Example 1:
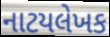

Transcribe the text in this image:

નાટયલેખક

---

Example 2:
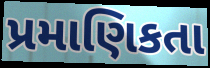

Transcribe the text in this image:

પ્રમાણિકતા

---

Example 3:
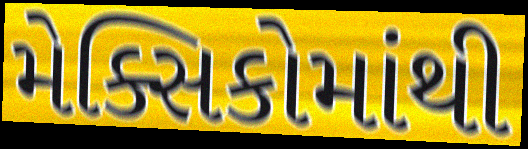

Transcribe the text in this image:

મેક્સિકોમાંથી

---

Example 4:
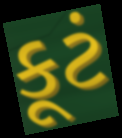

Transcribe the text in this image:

કૂટં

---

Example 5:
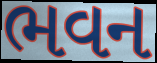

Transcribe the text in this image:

ભવન